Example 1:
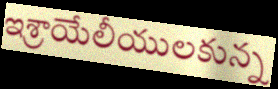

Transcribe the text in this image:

ఇశ్రాయేలీయులకున్న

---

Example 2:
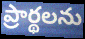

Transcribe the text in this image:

ప్రార్థలను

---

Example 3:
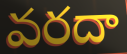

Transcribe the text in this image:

వరదా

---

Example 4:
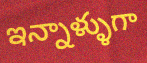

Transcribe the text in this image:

ఇన్నాళ్ళుగా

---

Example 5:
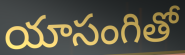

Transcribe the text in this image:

యాసంగితో